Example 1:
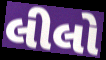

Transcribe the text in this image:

લીલો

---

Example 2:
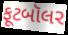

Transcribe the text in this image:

ફૂટબૉલર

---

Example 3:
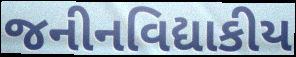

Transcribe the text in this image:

જનીનવિદ્યાકીય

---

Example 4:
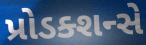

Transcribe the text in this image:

પ્રોડક્શન્સે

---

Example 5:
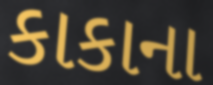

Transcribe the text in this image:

કાકાના